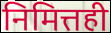
निमित्तही